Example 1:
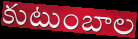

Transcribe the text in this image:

కుటుంబాల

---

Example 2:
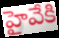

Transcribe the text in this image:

హైవేకి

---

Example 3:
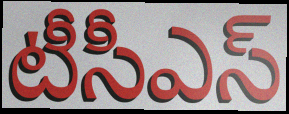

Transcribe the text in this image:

టీసీఎస్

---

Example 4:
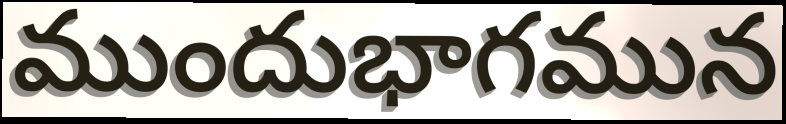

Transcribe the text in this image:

ముందుభాగమున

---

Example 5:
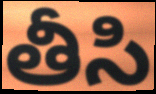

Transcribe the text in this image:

తీసి